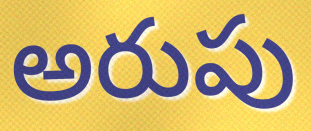
అరుపు